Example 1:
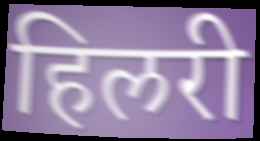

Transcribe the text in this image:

हिलरी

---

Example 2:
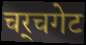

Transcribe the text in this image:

चर्चगेट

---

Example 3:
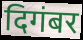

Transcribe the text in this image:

दिगंबर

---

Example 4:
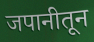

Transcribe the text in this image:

जपानीतून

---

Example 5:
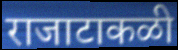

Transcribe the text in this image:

राजाटाकळी